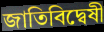
জাতিবিদ্বেষী